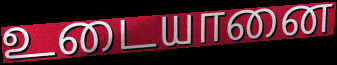
உடையானை